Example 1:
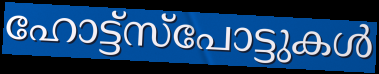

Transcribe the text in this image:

ഹോട്ട്സ്പോട്ടുകൾ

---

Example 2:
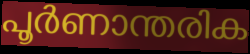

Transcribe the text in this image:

പൂർണാന്തരിക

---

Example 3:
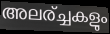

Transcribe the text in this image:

അലര്ച്ചകളും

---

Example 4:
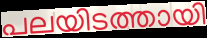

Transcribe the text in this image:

പലയിടത്തായി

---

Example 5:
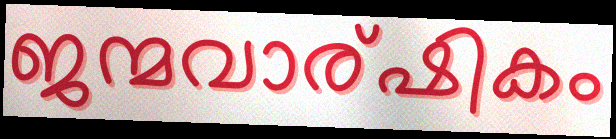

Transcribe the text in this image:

ജന്മവാര്ഷികം